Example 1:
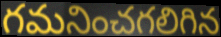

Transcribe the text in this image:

గమనించగలిగిన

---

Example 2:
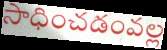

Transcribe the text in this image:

సాధించడంవల్ల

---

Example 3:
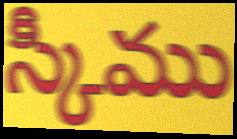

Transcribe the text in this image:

స్కీము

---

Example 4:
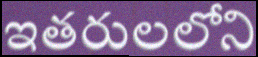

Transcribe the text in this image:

ఇతరులలోని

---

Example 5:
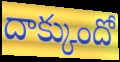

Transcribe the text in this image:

దాక్కుందో